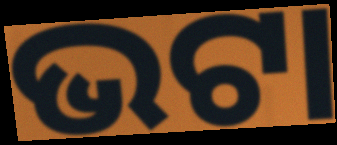
ଭଟା